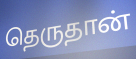
தெருதான்